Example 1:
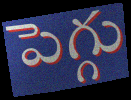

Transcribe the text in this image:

పెగ్గు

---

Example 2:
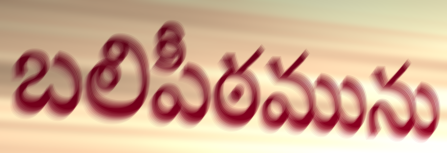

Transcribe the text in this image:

బలిపీఠమును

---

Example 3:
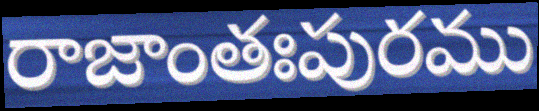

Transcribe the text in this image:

రాజాంతఃపురము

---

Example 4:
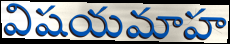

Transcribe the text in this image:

విషయమాహ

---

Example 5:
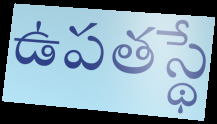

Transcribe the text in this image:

ఉపతస్థే